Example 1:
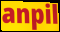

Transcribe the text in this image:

anpil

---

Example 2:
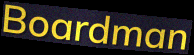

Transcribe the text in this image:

Boardman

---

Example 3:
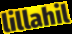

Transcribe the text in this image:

lillahil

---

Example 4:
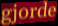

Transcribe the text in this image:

gjorde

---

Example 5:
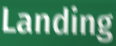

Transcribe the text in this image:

Landing